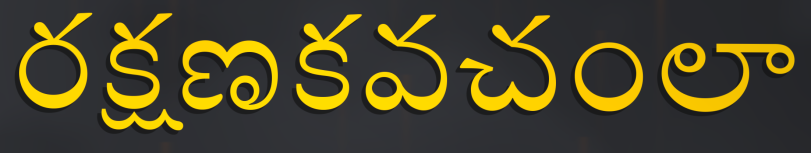
రక్షణకవచంలా